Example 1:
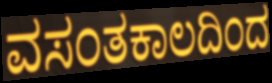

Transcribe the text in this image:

ವಸಂತಕಾಲದಿಂದ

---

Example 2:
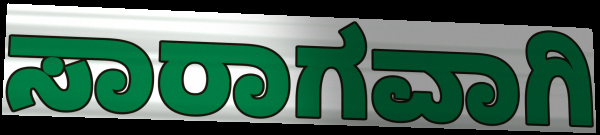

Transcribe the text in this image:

ಸಾರಾಗವಾಗಿ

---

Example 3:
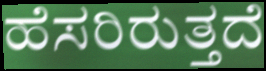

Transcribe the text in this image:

ಹೆಸರಿರುತ್ತದೆ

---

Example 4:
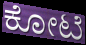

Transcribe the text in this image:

ಕೋಟೆ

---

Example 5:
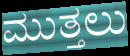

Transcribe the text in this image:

ಮುತ್ತಲು